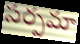
సర్పమా